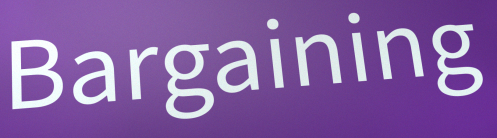
Bargaining